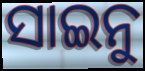
ସାଇନୁ